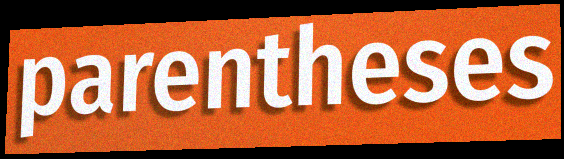
parentheses